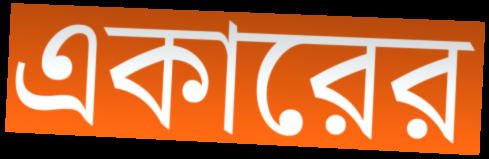
একারের